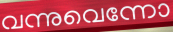
വന്നുവെന്നോ